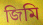
জিমি